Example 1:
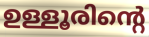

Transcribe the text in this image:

ഉള്ളൂരിന്റെ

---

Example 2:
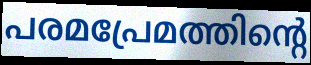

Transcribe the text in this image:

പരമപ്രേമത്തിന്റെ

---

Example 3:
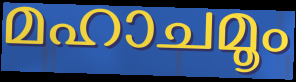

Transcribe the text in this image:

മഹാചമൂം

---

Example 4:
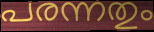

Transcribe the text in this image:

പരന്നതും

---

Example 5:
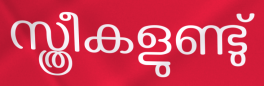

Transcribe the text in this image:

സ്ത്രീകളുണ്ടു്